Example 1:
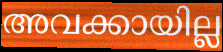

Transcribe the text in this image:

അവക്കായില്ല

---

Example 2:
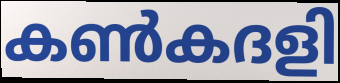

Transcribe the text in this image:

കൺകദളി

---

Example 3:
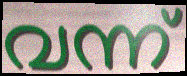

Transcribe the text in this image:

വന്ന്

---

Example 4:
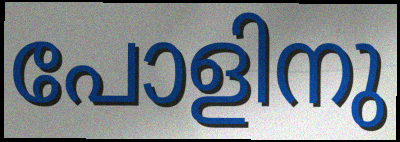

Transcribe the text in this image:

പോളിനു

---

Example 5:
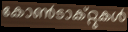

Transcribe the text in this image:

കോൺടാക്റ്റുകൾ